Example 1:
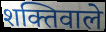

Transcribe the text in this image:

शक्तिवाले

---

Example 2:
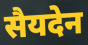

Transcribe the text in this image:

सैयदेन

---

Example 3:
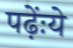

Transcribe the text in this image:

पढ़ेंःये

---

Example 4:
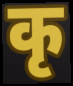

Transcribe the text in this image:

कृ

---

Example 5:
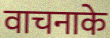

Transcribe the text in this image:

वाचनाके